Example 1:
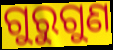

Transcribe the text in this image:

ଗୁରୁଗୁଣ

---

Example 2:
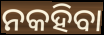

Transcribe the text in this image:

ନକହିବା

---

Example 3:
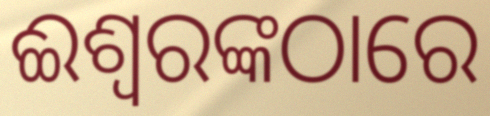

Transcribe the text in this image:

ଈଶ୍ୱରଙ୍କଠାରେ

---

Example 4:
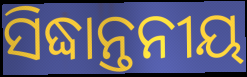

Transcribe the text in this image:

ସିଦ୍ଧାନ୍ତନୀୟ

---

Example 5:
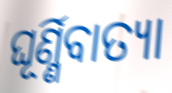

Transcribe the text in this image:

ଘୂର୍ଣ୍ଣିବାତ୍ୟା